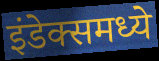
इंडेक्समध्ये